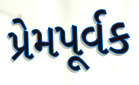
પ્રેમપૂર્વક